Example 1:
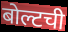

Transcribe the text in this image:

बोल्टची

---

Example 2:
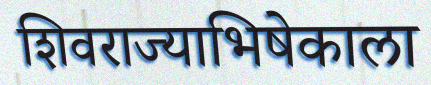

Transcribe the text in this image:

शिवराज्याभिषेकाला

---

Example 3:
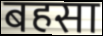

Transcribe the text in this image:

बहसा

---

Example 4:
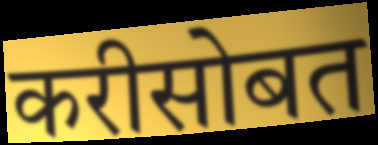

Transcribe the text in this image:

करीसोबत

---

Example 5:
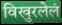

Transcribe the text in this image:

विखुरलेलं